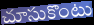
చూసుకొంటు